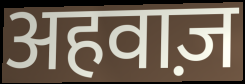
अहवाज़